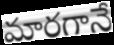
మారగానే